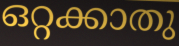
ഒറ്റക്കാതു